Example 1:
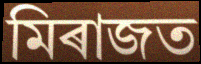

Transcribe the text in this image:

মিৰাজত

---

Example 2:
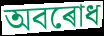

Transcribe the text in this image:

অবৰোধ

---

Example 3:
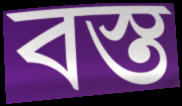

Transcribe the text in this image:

বস্ত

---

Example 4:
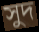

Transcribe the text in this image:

সুদ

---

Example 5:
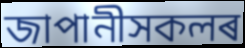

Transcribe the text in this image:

জাপানীসকলৰ